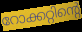
റോക്കറ്റിന്റെ